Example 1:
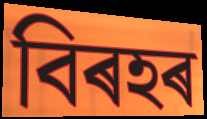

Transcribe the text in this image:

বিৰহৰ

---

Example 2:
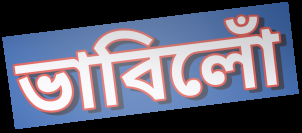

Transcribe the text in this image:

ভাবিলোঁ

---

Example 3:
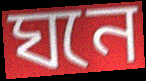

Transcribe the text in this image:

ঘনে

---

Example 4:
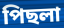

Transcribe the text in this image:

পিছলা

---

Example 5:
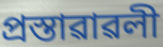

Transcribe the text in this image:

প্ৰস্তাৱাৱলী